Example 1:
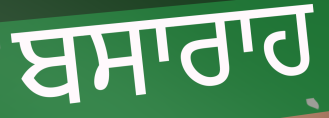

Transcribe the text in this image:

ਬਸਾਰਾਹ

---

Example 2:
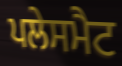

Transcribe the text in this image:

ਪਲੇਸਮੈਟ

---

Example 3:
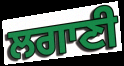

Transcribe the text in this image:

ਲਗਾਣੀ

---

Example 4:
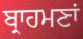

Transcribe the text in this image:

ਬ੍ਰਾਹਮਣਾਂ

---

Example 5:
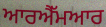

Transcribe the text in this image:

ਆਰਐੱਮਆਰ